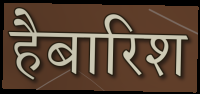
हैबारिश